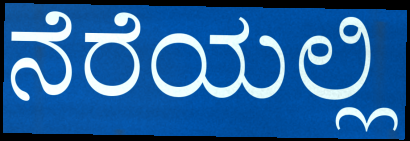
ನೆರೆಯಲ್ಲಿ